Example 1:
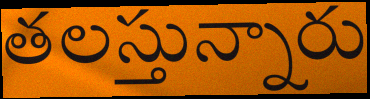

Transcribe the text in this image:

తలస్తున్నారు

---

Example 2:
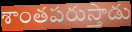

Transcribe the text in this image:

శాంతపరుస్తాడు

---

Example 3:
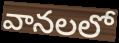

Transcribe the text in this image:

వానలలో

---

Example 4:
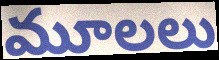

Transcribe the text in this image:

మూలలు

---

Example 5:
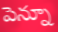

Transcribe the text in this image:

పెన్నూ